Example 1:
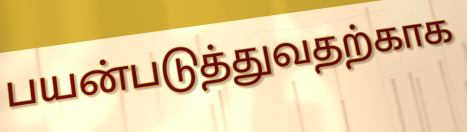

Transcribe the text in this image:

பயன்படுத்துவதற்காக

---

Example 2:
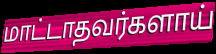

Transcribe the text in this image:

மாட்டாதவர்களாய்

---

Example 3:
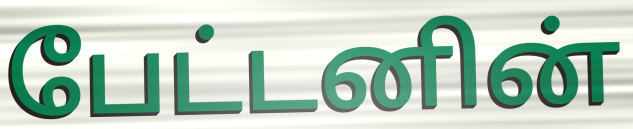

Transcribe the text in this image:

பேட்டனின்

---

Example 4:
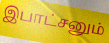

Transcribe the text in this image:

இபாட்சனும்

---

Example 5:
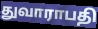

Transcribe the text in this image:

துவாராபதி